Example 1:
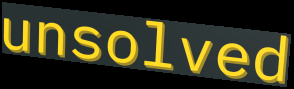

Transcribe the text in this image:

unsolved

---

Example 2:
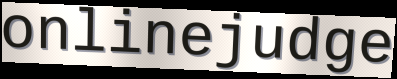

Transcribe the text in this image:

onlinejudge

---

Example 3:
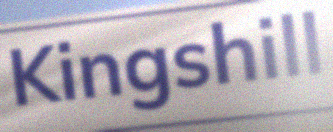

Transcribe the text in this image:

Kingshill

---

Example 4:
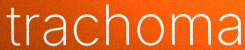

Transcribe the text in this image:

trachoma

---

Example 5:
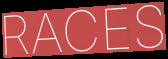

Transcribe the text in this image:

RACES